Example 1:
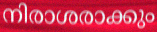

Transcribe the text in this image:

നിരാശരാക്കും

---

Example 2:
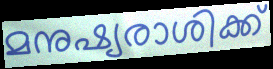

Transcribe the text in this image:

മനുഷ്യരാശിക്ക്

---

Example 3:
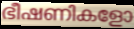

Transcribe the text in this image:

ഭീഷണികളോ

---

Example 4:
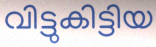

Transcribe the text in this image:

വിട്ടുകിട്ടിയ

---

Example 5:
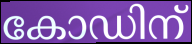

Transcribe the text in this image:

കോഡിന്